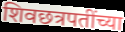
शिवछत्रपतींच्या